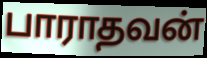
பாராதவன்